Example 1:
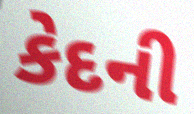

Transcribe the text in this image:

કેદની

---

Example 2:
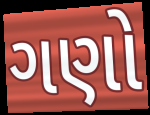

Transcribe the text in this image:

ગણો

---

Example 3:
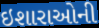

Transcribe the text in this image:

ઇશારાઓની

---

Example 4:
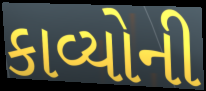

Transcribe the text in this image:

કાવ્યોની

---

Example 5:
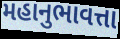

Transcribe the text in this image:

મહાનુભાવત્તા